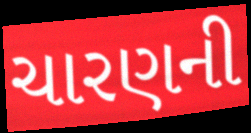
ચારણની